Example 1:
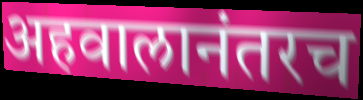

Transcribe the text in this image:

अहवालानंतरच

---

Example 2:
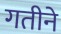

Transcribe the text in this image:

गतीने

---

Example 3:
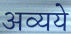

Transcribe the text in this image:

अव्यये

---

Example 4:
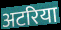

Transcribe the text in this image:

अटरिया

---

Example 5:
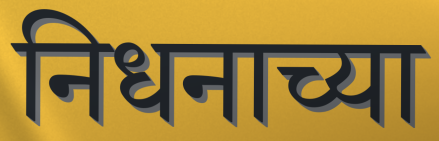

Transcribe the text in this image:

निधनाच्या